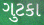
ગુટકા